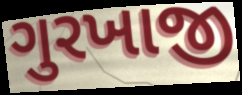
ગુરખાજી